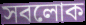
সবলোক